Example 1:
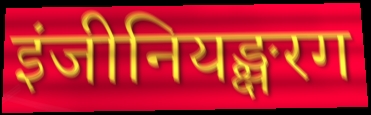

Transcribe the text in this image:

इंजीनियङ्क्षरग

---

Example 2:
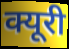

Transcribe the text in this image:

क्यूरी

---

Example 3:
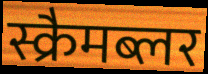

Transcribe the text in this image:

स्क्रैमब्लर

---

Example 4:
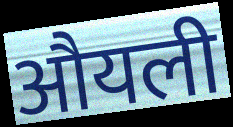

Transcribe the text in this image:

औयली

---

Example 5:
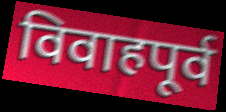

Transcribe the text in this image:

विवाहपूर्व